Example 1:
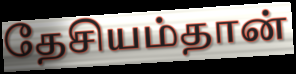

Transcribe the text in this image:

தேசியம்தான்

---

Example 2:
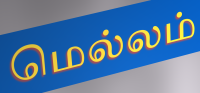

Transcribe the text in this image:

மெல்லம்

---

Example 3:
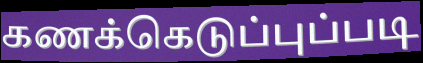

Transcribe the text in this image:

கணக்கெடுப்புப்படி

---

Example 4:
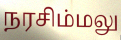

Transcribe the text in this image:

நரசிம்மலு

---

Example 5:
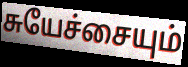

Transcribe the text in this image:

சுயேச்சையும்